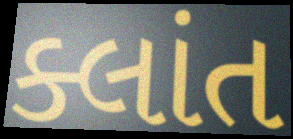
ક્લાંત